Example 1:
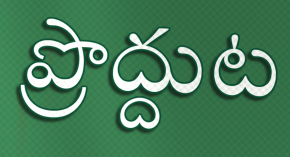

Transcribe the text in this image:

ప్రొద్దుట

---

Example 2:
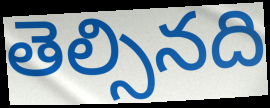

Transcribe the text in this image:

తెల్సినది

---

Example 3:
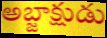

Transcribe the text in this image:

అబ్జాక్షుడు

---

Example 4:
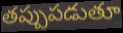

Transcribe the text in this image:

తప్పుపడుతూ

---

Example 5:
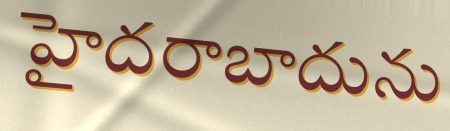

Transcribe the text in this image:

హైదరాబాదును